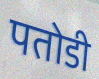
पतोडी